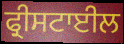
ਫ੍ਰੀਸਟਾਈਲ